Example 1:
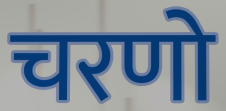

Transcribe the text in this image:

चरणो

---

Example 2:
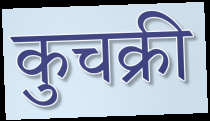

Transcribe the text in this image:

कुचक्री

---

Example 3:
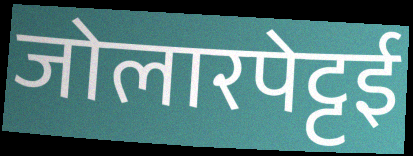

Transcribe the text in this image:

जोलारपेट्टई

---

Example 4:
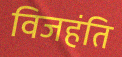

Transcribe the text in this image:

विजहंति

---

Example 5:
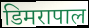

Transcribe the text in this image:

डिमरापाल